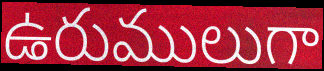
ఉరుములుగా